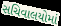
સચિવાલયોમાં